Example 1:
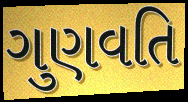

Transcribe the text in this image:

ગુણવતિ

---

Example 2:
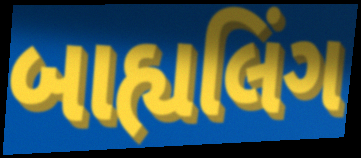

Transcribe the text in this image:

બાહ્યલિંગ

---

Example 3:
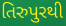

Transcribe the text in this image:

તિરુપુરથી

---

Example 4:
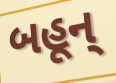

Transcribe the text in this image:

બહૂન્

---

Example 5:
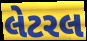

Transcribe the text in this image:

લેટરલ